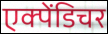
एक्पेंडिचर